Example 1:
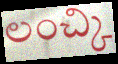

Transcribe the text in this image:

లంచ్కి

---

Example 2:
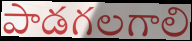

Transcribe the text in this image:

పాడగలగాలి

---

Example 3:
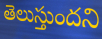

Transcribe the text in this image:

తెలుస్తుందని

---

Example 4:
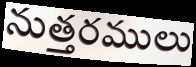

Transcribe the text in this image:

నుత్తరములు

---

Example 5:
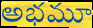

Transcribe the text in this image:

అభమూ